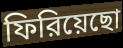
ফিরিয়েছো